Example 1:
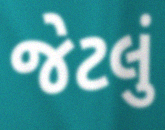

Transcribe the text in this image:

જેટલું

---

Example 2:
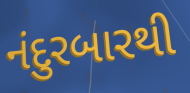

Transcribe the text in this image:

નંદુરબારથી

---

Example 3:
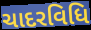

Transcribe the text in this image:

ચાદરવિધિ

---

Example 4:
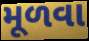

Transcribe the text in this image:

મૂળવા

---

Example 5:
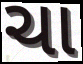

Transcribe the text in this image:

ચા